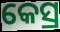
କେସ୍ର